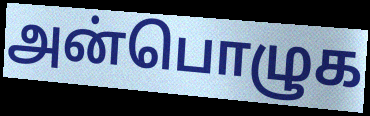
அன்பொழுக